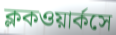
ক্লকওয়ার্কসে